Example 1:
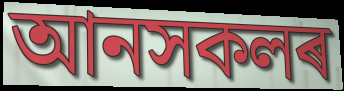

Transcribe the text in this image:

আনসকলৰ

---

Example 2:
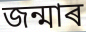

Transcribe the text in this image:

জন্মাৰ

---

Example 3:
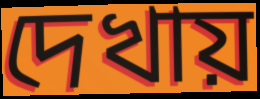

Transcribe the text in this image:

দেখায়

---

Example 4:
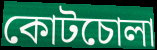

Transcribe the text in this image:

কোটচোলা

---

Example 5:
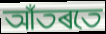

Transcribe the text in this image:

আঁতৰতে